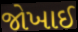
જોખાઈ